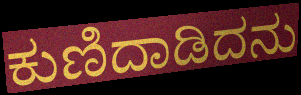
ಕುಣಿದಾಡಿದನು